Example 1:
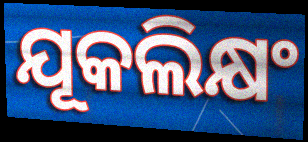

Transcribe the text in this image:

ଯୂକଲିକ୍ଷଂ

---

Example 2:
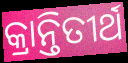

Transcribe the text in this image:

କ୍ରାନ୍ତିତୀର୍ଥ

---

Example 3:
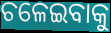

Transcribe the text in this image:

ଚଳେଇବାକୁ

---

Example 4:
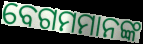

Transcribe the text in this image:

ବେଗମମାନଙ୍କ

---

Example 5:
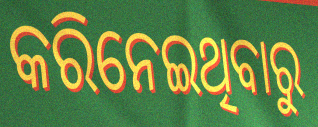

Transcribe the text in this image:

କରିନେଇଥିବାରୁ